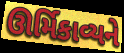
ઊર્મિકાવ્યને